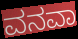
ವನವಾ